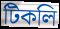
টিকলি